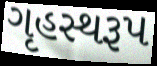
ગૃહસ્થરૂપ